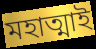
মহাত্মাই